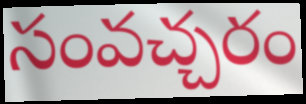
సంవచ్చరం